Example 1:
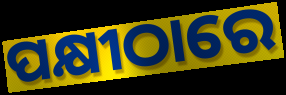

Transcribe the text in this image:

ପକ୍ଷୀଠାରେ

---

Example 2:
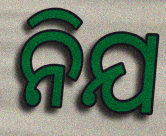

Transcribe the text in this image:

ନିଯ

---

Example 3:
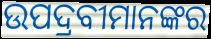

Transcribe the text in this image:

ଉପଦ୍ରବୀମାନଙ୍କର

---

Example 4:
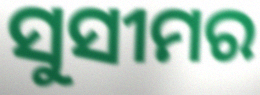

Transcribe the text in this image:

ସୁସୀମର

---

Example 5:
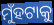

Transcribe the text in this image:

ମୁଁହଟାକୁ